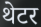
थेटर